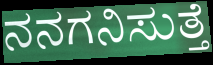
ನನಗನಿಸುತ್ತೆ